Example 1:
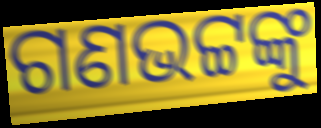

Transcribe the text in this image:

ଗଣଭଟ୍ଟଙ୍କୁ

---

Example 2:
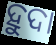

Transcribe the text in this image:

ହୁଦା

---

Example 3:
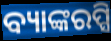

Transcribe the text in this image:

ବ୍ୟାଙ୍କରପ୍ସି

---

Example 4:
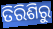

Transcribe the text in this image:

ତିରିଶିରୁ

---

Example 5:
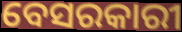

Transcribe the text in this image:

ବେସରକାରୀ